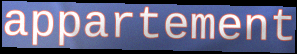
appartement